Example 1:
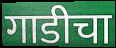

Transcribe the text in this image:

गाडीचा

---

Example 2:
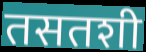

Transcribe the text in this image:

तसतशी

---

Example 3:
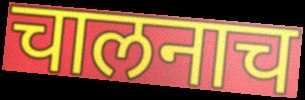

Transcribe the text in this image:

चालनाच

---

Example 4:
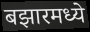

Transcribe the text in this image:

बझारमध्ये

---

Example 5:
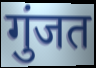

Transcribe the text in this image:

गुंजत